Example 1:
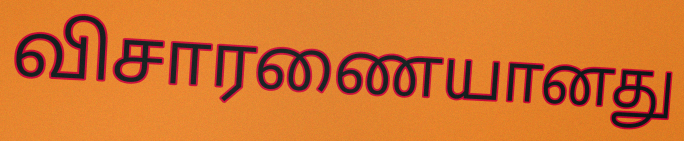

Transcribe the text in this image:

விசாரணையானது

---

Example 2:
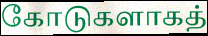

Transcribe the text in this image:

கோடுகளாகத்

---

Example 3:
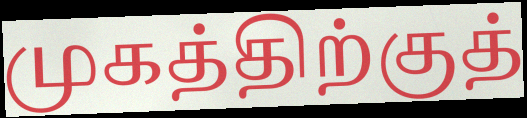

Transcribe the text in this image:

முகத்திற்குத்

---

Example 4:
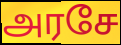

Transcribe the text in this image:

அரசே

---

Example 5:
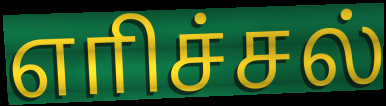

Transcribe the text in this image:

எரிச்சல்